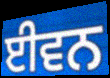
ਈਵਨ